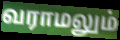
வராமலும்